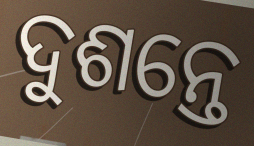
ଦୁଶନ୍ତେ